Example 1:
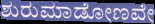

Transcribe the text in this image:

ಶುರುಮಾಡೋಣವೇ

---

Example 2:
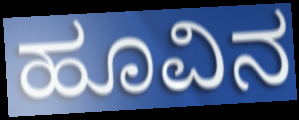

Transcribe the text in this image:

ಹೂವಿನ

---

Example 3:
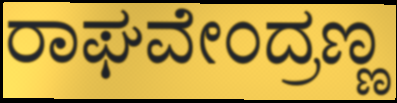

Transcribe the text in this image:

ರಾಘವೇಂದ್ರಣ್ಣ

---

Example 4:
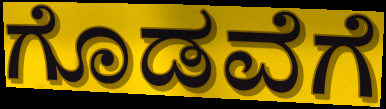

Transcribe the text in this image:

ಗೊಡವೆಗೆ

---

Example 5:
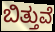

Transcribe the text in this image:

ಬಿತ್ತುವೆ